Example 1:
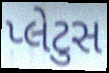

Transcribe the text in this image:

પ્લેટુસ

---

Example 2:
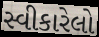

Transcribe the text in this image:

સ્વીકારેલો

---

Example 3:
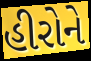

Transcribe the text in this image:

હીરોને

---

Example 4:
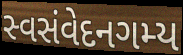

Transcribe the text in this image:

સ્વસંવેદનગમ્ય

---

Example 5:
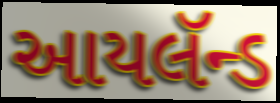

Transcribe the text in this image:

આયલૅન્ડ